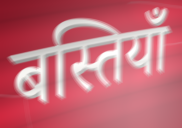
बस्तियाँ